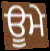
ਊਮੇ